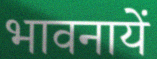
भावनायें